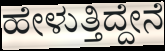
ಹೇಳುತ್ತಿದ್ದೇನೆ